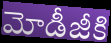
మోడీజీకి